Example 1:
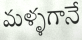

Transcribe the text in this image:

మళ్ళగానే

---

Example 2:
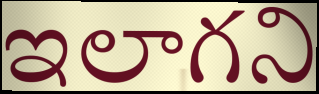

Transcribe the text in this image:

ఇలాగని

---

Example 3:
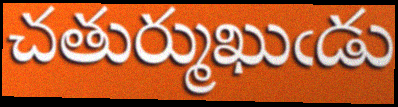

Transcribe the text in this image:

చతుర్ముఖుఁడు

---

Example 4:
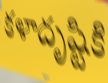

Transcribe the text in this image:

కళాదృష్టికి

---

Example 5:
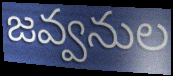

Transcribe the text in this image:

జవ్వనుల